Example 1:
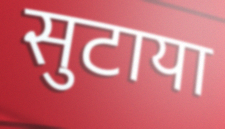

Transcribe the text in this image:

सुटाया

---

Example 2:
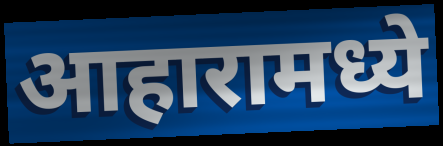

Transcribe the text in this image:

आहारामध्ये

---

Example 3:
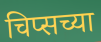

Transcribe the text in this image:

चिप्सच्या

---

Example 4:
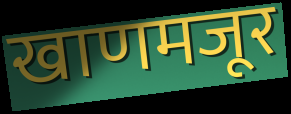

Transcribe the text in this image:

खाणमजूर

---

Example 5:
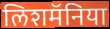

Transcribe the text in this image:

लिशमॅनिया